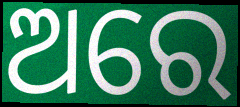
ଅରେ